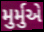
મુર્મુએ